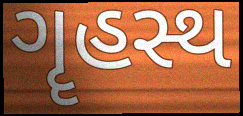
ગૄહસ્થ